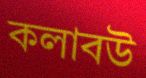
কলাবউ